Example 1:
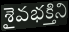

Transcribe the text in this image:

శైవభక్తిని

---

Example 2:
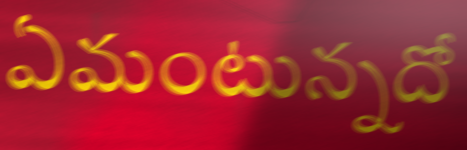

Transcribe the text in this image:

ఏమంటున్నదో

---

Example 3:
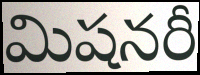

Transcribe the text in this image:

మిషనరీ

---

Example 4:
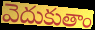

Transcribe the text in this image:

వెదుకుతాం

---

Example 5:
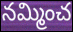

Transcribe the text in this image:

నమ్మించ